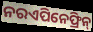
ନରଏପିନେଫ୍ରିନ୍